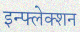
इन्फ्लेक्शन